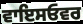
ਵਾਇਸਓਵਰ